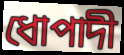
ধোপাদী